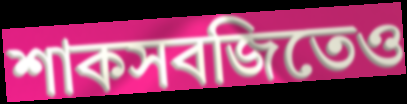
শাকসবজিতেও